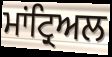
ਮਾਂਟ੍ਰਿਅਲ